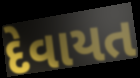
દેવાયત